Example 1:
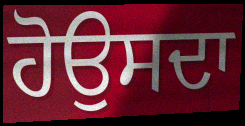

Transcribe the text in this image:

ਹੋਉਸਦਾ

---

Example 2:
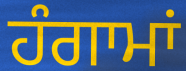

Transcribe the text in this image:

ਹੰਗਾਮਾਂ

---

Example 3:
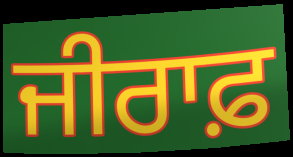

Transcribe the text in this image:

ਜੀਰਾਫ਼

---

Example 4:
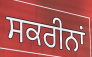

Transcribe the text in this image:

ਸਕਰੀਨਾਂ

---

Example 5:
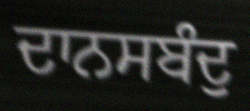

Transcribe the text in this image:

ਦਾਨਸਬੰਦੁ